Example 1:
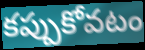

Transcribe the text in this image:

కప్పుకోవటం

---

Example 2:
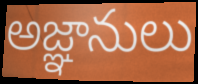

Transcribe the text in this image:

అజ్ఞానులు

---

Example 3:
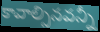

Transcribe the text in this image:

కావాల్సినవన్నీ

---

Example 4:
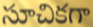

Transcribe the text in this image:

సూచికగా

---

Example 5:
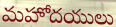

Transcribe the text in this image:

మహోదయులు